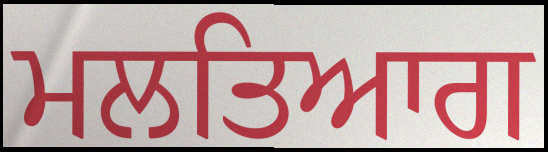
ਮਲਤਿਆਗ